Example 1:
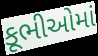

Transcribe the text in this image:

કૂભીઓમાં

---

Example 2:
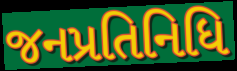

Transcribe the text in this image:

જનપ્રતિનિધિ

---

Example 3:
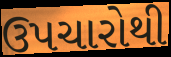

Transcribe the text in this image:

ઉપચારોથી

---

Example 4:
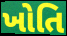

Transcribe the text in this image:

ખોતિ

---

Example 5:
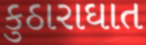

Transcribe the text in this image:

કુઠારાઘાત